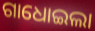
ଗାଧୋଇଲା